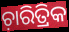
ଚ଼ାରିତ୍ରିକ